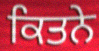
ਕਿਤਨੇ